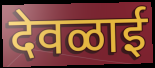
देवळाई